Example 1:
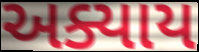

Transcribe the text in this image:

અક્યાય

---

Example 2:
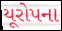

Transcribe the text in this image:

યૂરોપના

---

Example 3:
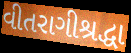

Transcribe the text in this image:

વીતરાગીશ્રદ્ધા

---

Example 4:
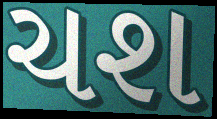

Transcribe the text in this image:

ચશ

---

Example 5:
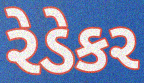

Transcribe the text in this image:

રેડેકર